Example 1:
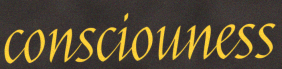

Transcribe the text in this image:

consciouness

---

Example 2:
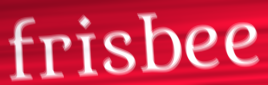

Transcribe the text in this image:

frisbee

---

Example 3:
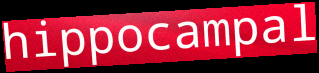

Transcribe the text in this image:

hippocampal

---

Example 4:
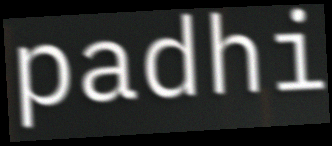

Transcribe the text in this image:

padhi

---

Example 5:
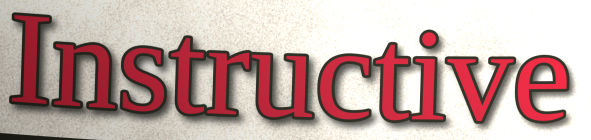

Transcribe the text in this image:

Instructive